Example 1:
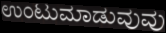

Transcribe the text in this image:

ಉಂಟುಮಾಡುವುವು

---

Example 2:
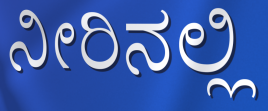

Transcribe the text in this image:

ನೀರಿನಲ್ಲಿ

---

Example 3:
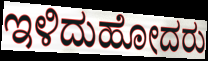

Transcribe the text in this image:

ಇಳಿದುಹೋದರು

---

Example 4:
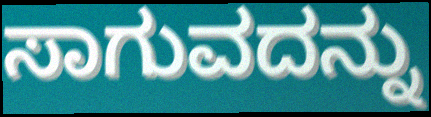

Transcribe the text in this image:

ಸಾಗುವದನ್ನು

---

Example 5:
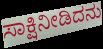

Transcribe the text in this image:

ಸಾಕ್ಷಿನೀಡಿದನು